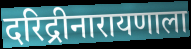
दरिद्रीनारायणाला